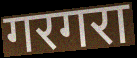
गरगरा